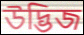
উদ্ভিজ